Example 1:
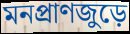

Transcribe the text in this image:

মনপ্রাণজুড়ে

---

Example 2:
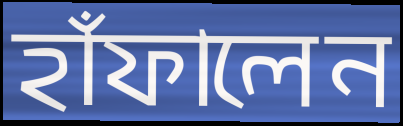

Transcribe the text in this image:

হাঁফালেন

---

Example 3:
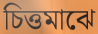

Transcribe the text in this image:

চিত্তমাঝে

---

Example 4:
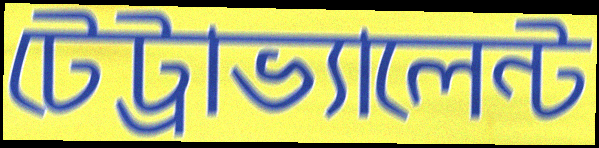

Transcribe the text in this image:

টেট্রাভ্যালেন্ট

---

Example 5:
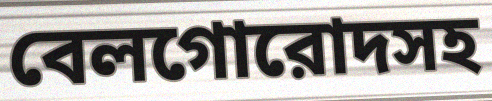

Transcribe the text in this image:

বেলগোরোদসহ